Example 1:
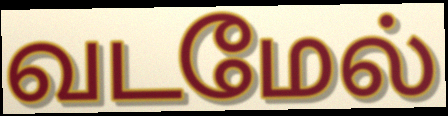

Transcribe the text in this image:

வடமேல்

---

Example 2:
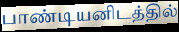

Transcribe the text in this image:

பாண்டியனிடத்தில்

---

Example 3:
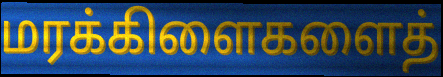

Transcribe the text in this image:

மரக்கிளைகளைத்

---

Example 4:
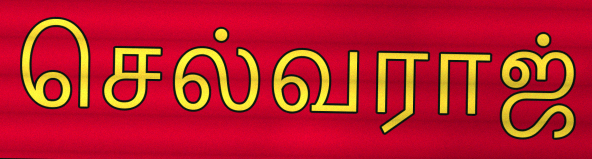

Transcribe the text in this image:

செல்வராஜ்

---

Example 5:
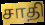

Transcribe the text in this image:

சாதி